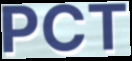
PCT